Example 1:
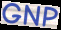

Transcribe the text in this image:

GNP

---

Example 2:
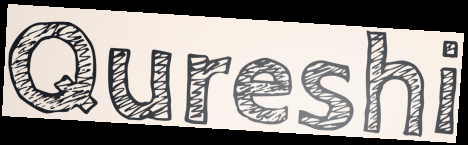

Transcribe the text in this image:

Qureshi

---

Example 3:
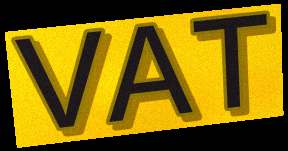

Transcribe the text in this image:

VAT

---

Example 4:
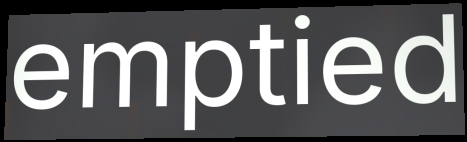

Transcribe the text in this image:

emptied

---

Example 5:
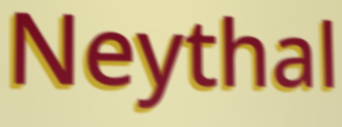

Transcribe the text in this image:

Neythal